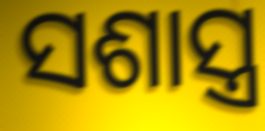
ସଶାସ୍ତ୍ର